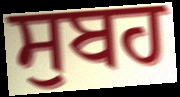
ਸੁਬਹ